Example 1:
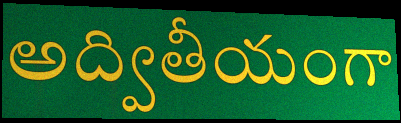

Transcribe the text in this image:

అద్వితీయంగా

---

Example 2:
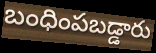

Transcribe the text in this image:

బంధింపబడ్డారు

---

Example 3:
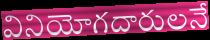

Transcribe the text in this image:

వినియోగదారులనే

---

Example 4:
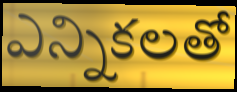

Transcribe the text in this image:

ఎన్నికలతో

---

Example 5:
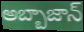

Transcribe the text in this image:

అబ్బాజాన్